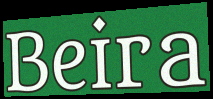
Beira